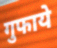
गुफाये